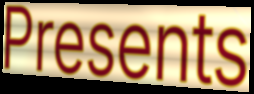
Presents